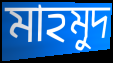
মাহমুদ